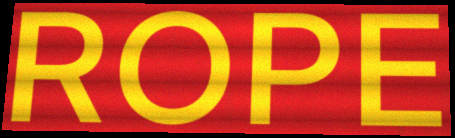
ROPE